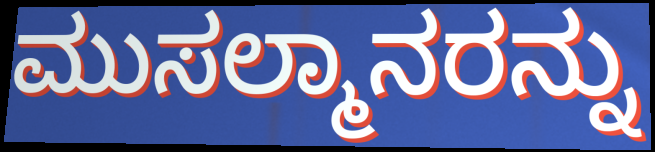
ಮುಸಲ್ಮಾನರನ್ನು